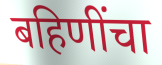
बहिणींचा